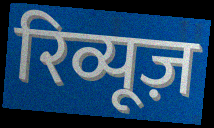
रिव्यूज़